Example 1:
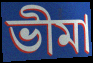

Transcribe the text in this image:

ভীমা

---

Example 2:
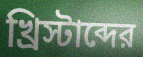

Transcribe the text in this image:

খ্রিস্টাব্দের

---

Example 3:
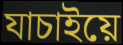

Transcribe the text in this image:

যাচাইয়ে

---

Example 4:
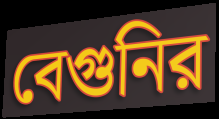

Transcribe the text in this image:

বেগুনির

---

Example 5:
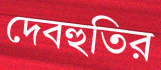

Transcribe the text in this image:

দেবহুতির